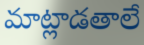
మాట్లాడతాలే